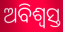
ଅବିଶ୍ୱସ୍ତ